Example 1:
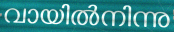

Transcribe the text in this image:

വായിൽനിന്നു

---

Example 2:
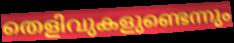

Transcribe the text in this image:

തെളിവുകളുണ്ടെന്നും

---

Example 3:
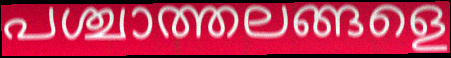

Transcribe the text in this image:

പശ്ചാത്തലങ്ങളെ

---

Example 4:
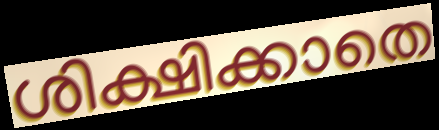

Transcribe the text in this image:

ശിക്ഷിക്കാതെ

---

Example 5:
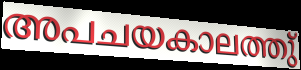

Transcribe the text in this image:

അപചയകാലത്തു്